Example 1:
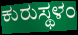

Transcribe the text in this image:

ಕುರುಸ್ಥಳಂ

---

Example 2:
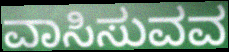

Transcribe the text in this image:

ವಾಸಿಸುವವ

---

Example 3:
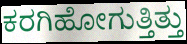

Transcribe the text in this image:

ಕರಗಿಹೋಗುತ್ತಿತ್ತು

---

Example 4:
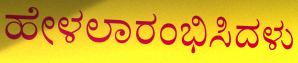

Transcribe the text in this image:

ಹೇಳಲಾರಂಭಿಸಿದಳು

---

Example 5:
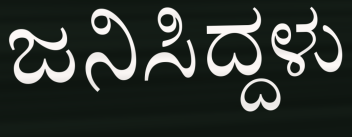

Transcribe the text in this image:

ಜನಿಸಿದ್ದಳು